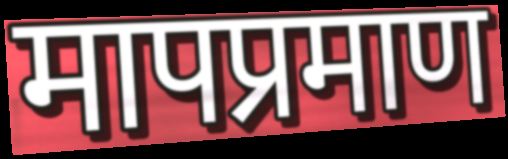
मापप्रमाण